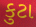
કુટા